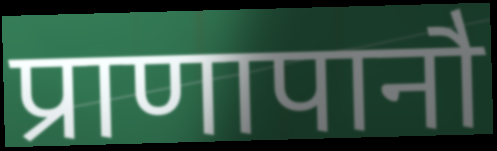
प्राणापानौ